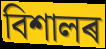
বিশালৰ